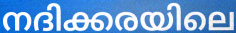
നദിക്കരയിലെ